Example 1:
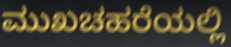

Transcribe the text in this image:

ಮುಖಚಹರೆಯಲ್ಲಿ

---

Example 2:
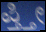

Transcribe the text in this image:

ಪ್ತ್ತೀ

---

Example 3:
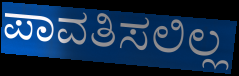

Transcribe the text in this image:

ಪಾವತಿಸಲಿಲ್ಲ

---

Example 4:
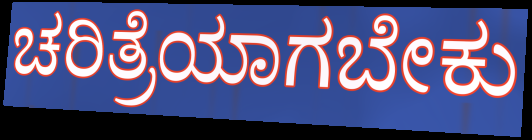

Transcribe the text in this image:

ಚರಿತ್ರೆಯಾಗಬೇಕು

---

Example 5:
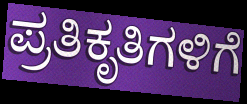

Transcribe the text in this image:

ಪ್ರತಿಕೃತಿಗಳಿಗೆ